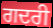
ਗਦਰੀ